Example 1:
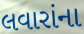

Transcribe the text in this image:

લવારાંના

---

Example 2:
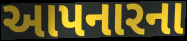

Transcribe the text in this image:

આપનારના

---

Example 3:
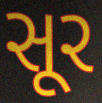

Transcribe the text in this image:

સૂર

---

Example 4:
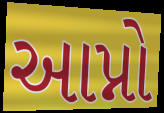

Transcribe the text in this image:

આપ્નો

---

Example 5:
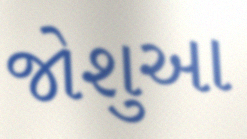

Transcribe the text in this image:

જોશુઆ